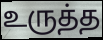
உருத்த